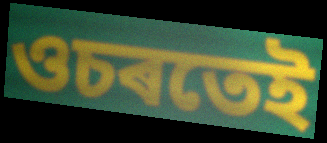
ওচৰতেই